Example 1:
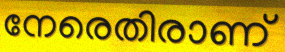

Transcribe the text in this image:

നേരെതിരാണ്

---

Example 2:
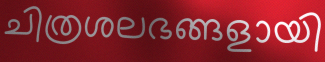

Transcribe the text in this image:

ചിത്രശലഭങ്ങളായി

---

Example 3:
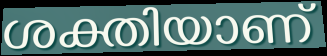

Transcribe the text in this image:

ശക്തിയാണ്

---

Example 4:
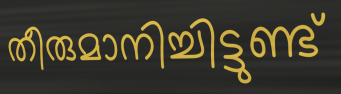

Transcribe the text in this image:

തീരുമാനിച്ചിട്ടുണ്ട്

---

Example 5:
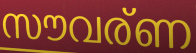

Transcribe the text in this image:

സൗവര്ണ